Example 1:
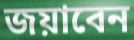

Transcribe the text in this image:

জয়াবেন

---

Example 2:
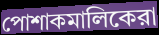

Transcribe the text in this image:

পোশাকমালিকেরা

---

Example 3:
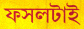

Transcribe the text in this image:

ফসলটাই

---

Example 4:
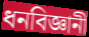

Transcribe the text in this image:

ধনবিজ্ঞানী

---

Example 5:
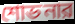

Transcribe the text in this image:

শোভনার